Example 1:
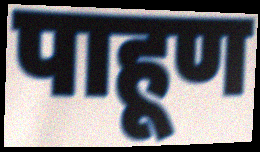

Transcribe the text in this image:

पाहूण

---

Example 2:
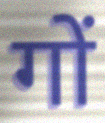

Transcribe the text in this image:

गों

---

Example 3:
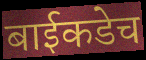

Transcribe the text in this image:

बाईकडेच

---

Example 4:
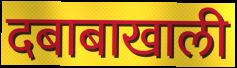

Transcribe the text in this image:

दबाबाखाली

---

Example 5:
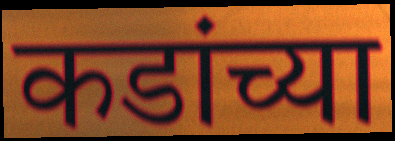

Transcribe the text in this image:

कडांच्या